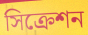
সিক্রেশন